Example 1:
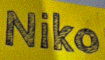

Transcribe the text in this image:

Niko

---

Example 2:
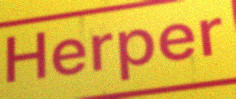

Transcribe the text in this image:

Herper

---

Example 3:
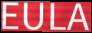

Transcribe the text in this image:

EULA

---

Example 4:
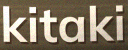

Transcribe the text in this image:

kitaki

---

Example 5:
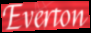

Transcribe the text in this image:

Everton